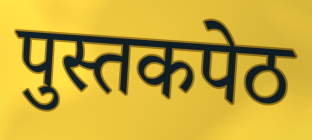
पुस्तकपेठ